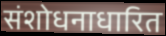
संशोधनाधारित